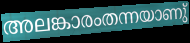
അലങ്കാരംതന്നയാണു്